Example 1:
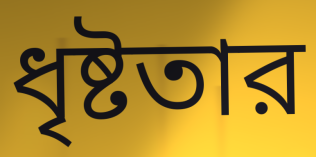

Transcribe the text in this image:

ধৃষ্টতার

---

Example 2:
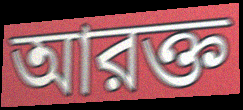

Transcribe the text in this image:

আরক্ত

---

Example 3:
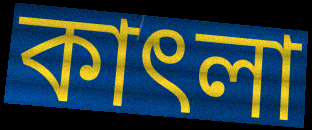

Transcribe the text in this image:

কাৎলা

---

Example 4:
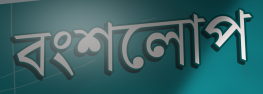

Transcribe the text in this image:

বংশলোপ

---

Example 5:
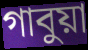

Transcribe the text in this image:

গাবুয়া